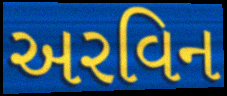
અરવિન